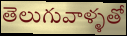
తెలుగువాళ్ళతో